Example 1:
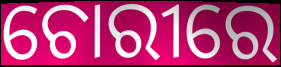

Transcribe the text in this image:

ଚୋରୀରେ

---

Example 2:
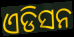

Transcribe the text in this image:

ଏଡିସନ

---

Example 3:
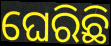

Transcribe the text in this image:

ଘେରିଛି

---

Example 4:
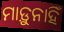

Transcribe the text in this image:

ମାଡ଼ୁନାହିଁ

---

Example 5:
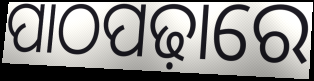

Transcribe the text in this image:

ପାଠପଢ଼ାରେ